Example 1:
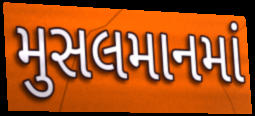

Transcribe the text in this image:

મુસલમાનમાં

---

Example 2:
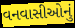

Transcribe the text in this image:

વનવાસીઓનું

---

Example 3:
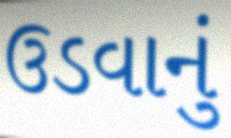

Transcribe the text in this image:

ઉડવાનું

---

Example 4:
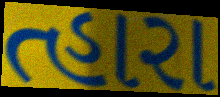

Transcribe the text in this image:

ત્હારા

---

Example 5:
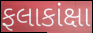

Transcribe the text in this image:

ફલાકાંક્ષા